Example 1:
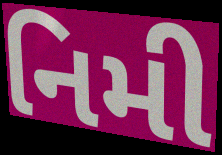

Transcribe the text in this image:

નિમી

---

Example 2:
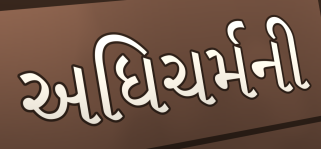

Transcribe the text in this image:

અધિચર્મની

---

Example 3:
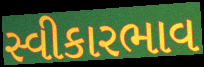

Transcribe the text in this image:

સ્વીકારભાવ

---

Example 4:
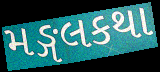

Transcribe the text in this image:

મઙ્ગલકથા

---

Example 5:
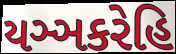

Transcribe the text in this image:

યઞ્ઞકરેહિ